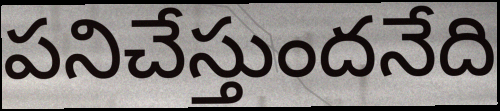
పనిచేస్తుందనేది